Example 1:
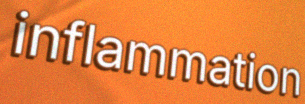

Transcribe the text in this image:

inflammation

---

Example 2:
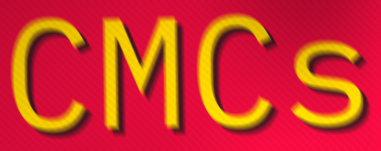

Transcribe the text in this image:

CMCs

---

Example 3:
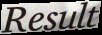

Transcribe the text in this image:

Result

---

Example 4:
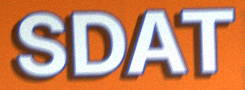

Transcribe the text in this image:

SDAT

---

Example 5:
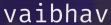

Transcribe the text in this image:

vaibhav